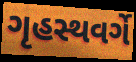
ગૃહસ્થવર્ગે